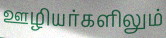
ஊழியர்களிலும்